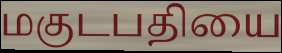
மகுடபதியை